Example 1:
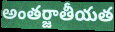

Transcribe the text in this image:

అంతర్జాతీయత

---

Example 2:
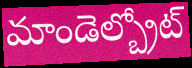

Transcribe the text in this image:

మాండెల్బ్రోట్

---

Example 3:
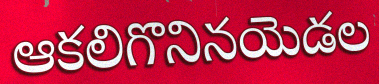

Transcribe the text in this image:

ఆకలిగొనినయెడల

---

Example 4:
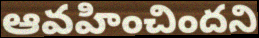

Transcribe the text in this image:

ఆవహించిందని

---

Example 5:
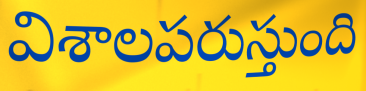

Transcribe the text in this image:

విశాలపరుస్తుంది